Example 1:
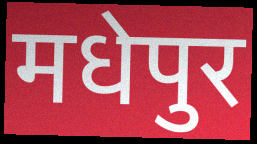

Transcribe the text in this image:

मधेपुर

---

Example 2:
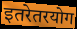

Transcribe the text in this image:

इतरेतरयोग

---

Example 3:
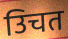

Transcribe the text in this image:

उिचत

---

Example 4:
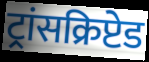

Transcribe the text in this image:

ट्रांसक्रिप्टेड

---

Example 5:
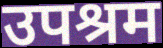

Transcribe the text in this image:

उपश्रम